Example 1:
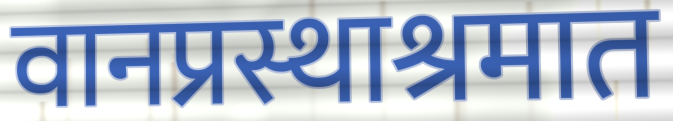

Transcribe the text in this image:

वानप्रस्थाश्रमात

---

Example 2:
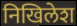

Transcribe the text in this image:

निखिलेश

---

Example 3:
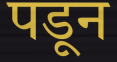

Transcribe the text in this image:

पडून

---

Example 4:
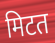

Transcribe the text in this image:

मिटत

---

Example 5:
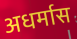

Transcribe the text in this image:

अधर्मास